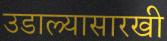
उडाल्यासारखी